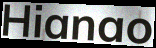
Hianao